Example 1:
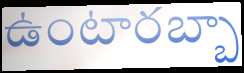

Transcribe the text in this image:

ఉంటారబ్బా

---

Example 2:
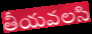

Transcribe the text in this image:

తీయవలసి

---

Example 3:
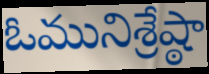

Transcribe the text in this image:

ఓమునిశ్రేష్ఠా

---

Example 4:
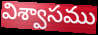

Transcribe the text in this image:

విశ్వాసము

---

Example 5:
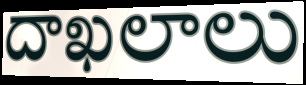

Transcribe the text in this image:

దాఖలాలు